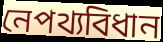
নেপথ্যবিধান